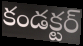
కండక్టర్